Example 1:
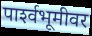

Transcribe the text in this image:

पार्श्‍वभूमीवर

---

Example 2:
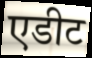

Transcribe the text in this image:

एडीट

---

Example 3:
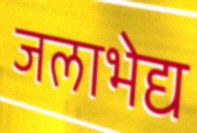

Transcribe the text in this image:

जलाभेद्य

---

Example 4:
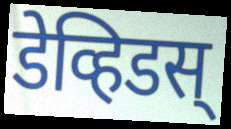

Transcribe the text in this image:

डेव्हिडस्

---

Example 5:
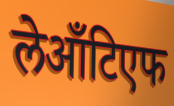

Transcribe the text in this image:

लेआँटिएफ